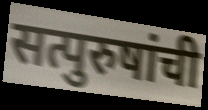
सत्पुरुषांची